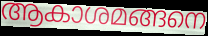
ആകാശമങ്ങനെ